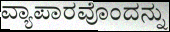
ವ್ಯಾಪಾರವೊಂದನ್ನು